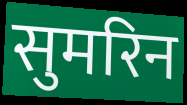
सुमरिन